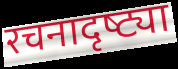
रचनादृष्ट्या